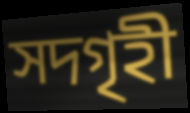
সদগৃহী